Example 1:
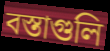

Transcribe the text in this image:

বস্তাগুলি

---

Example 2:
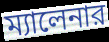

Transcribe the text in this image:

ম্যালেনার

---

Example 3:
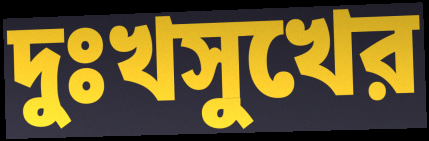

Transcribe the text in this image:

দুঃখসুখের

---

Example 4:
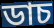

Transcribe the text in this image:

ডাচ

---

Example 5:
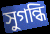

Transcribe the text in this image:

সুগন্ধি